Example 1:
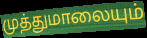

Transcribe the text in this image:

முத்துமாலையும்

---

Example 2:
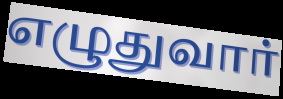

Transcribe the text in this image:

எழுதுவார்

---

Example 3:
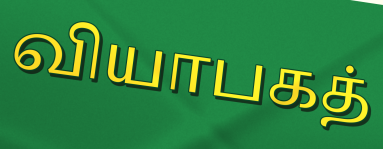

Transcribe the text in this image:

வியாபகத்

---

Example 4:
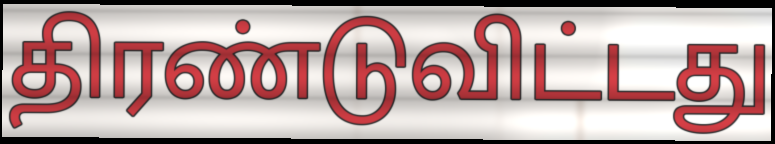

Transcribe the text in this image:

திரண்டுவிட்டது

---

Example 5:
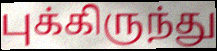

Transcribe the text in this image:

புக்கிருந்து